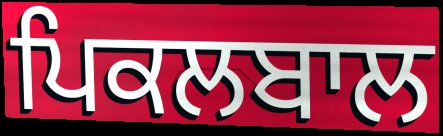
ਪਿਕਲਬਾਲ